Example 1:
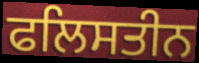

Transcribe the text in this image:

ਫਲਿਸਤੀਨ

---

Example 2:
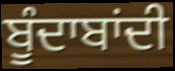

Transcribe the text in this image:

ਬੂੰਦਾਬਾਂਦੀ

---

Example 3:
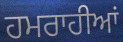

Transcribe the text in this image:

ਹਮਰਾਹੀਆਂ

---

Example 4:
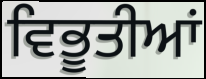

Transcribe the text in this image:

ਵਿਭੂਤੀਆਂ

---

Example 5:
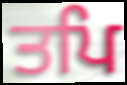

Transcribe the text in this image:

ਤਪਿ